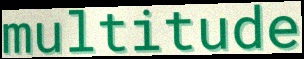
multitude